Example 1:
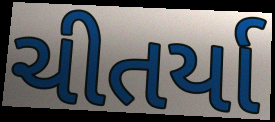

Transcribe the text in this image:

ચીતર્યા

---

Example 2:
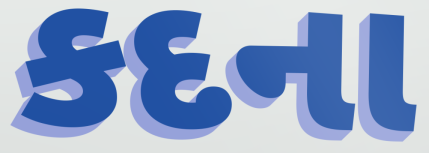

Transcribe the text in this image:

કદના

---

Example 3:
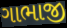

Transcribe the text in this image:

ગાભાજી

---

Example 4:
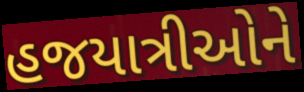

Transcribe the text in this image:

હજયાત્રીઓને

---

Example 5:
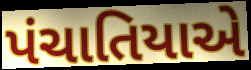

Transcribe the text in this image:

પંચાતિયાએ